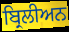
ਬ੍ਰਿਲੀਅਨ